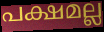
പക്ഷമല്ല